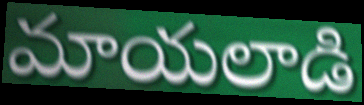
మాయలాడి